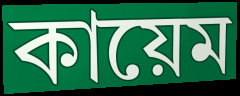
কায়েম